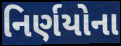
નિર્ણયોના